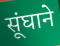
सूंघाने